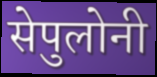
सेपुलोनी